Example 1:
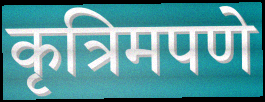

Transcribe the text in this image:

कृत्रिमपणे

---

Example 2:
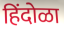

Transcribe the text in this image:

हिंदोळा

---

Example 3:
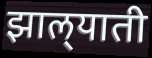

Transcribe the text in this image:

झाल्याती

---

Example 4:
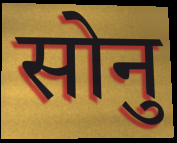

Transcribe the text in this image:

सोनु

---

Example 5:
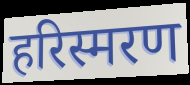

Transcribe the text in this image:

हरिस्मरण